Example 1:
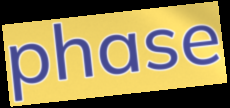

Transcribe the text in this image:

phase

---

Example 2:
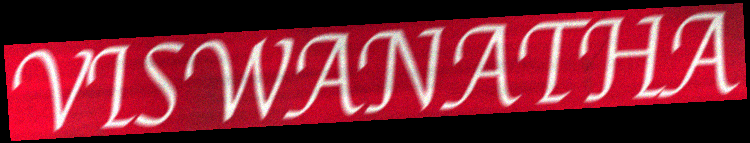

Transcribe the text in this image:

VISWANATHA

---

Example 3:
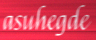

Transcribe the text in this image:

asuhegde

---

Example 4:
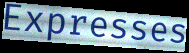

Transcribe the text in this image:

Expresses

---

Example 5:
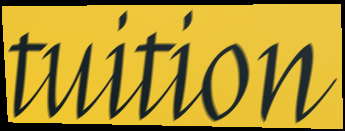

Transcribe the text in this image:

tuition